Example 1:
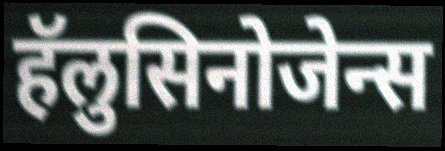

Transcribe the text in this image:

हॅलुसिनोजेन्स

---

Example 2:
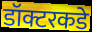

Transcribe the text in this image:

डॉक्टरकडे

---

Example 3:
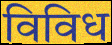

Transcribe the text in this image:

विविध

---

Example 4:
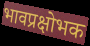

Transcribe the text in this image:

भावप्रक्षोभक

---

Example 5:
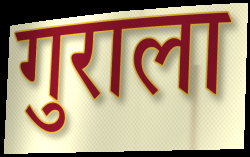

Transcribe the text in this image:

गुराला